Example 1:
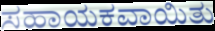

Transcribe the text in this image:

ಸಹಾಯಕವಾಯಿತು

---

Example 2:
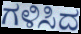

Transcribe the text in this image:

ಗಳಿಸಿದ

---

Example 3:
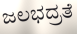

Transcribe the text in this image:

ಜಲಭದ್ರತೆ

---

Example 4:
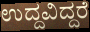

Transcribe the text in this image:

ಉದ್ದವಿದ್ದರೆ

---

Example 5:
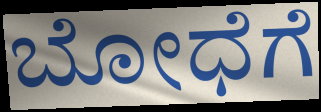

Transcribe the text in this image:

ಬೋಧೆಗೆ